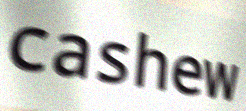
cashew